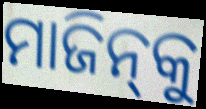
ମାଜିନ୍‌କୁ